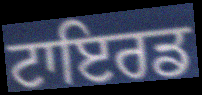
ਟਾਇਰਡ